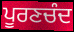
ਪੂਰਣਚੰਦ